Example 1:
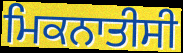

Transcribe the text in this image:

ਮਿਕਨਾਤੀਸੀ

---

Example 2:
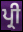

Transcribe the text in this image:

ਪ੍ਰੀ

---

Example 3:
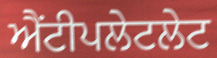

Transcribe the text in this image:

ਐਂਟੀਪਲੇਟਲੇਟ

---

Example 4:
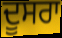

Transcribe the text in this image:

ਦੂਸਰਾ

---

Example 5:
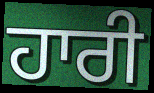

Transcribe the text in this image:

ਹਾਰੀ